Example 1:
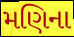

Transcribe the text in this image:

મણિના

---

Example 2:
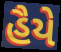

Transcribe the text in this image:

હૈયે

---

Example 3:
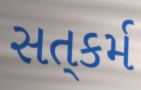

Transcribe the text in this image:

સત્‌કર્મ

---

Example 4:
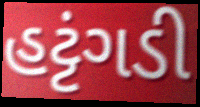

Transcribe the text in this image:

હટ્ટંગડી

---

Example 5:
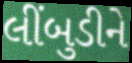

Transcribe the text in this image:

લીંબુડીને